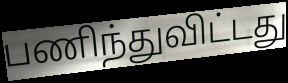
பணிந்துவிட்டது